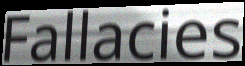
Fallacies